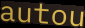
autou